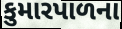
કુમારપાળના